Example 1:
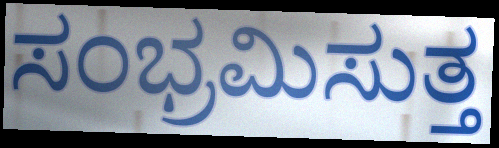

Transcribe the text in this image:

ಸಂಭ್ರಮಿಸುತ್ತ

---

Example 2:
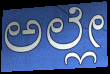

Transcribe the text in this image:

ಅಲ್ಲೇ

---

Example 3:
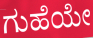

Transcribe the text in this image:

ಗುಹೆಯೇ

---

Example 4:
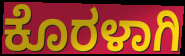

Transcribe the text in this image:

ಕೊರಳಾಗಿ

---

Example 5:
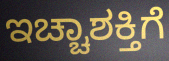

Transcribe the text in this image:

ಇಚ್ಚಾಶಕ್ತಿಗೆ